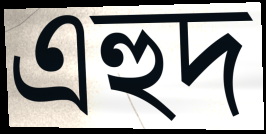
এহুদ